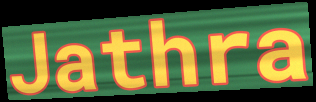
Jathra